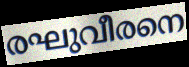
രഘുവീരനെ